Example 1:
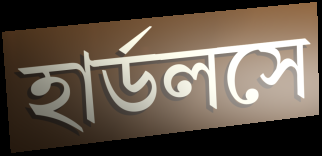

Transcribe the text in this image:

হার্ডলসে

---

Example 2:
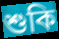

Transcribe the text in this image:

শুকি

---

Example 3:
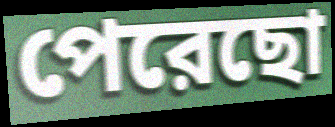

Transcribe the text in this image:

পেরেছো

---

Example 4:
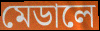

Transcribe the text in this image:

মেডালে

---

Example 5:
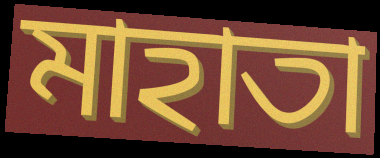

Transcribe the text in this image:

মাহাতা